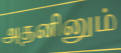
அதனினும்